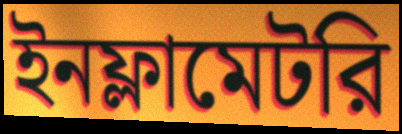
ইনফ্লামেটরি